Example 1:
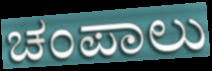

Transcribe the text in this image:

ಚಂಪಾಲು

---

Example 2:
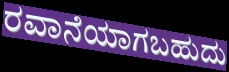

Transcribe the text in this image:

ರವಾನೆಯಾಗಬಹುದು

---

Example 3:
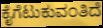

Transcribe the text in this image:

ಕೈಗೆಟುಕುವಂತಿದೆ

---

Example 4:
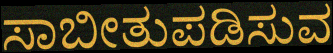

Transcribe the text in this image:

ಸಾಬೀತುಪಡಿಸುವ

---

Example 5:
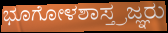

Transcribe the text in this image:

ಭೂಗೋಳಶಾಸ್ತ್ರಜ್ಞರು